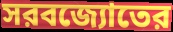
সরবজ্যোতের